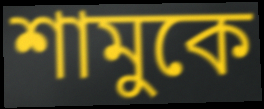
শামুকে